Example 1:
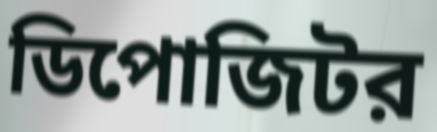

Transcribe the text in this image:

ডিপোজিটর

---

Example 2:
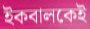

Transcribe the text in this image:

ইকবালকেই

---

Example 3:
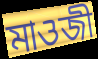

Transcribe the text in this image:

মাওজী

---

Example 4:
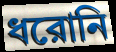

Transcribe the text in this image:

ধরোনি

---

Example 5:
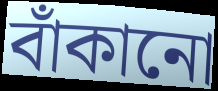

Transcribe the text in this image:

বাঁকানো